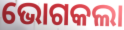
ଭୋଗକଲା